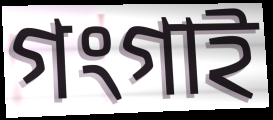
গংগাই